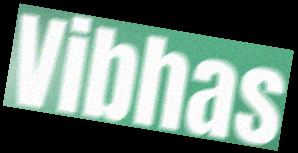
Vibhas